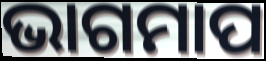
ଭାଗମାପ